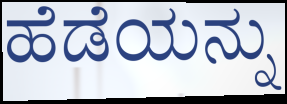
ಹೆಡೆಯನ್ನು